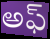
అఫ్